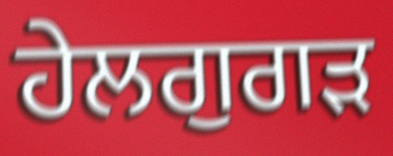
ਹੇਲਗੁਗੜ